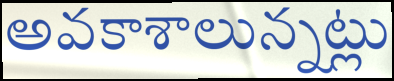
అవకాశాలున్నట్లు